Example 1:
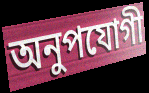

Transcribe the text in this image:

অনুপযোগী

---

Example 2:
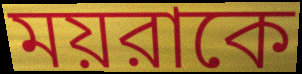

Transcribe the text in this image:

ময়রাকে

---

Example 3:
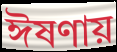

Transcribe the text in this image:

ঈষণায়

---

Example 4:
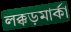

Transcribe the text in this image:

লক্কড়মার্কা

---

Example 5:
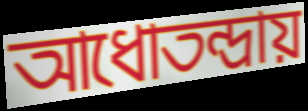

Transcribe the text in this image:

আধোতন্দ্রায়